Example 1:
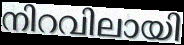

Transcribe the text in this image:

നിറവിലായി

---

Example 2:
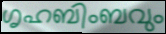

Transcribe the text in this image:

ഗൃഹബിംബവും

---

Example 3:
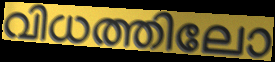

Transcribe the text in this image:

വിധത്തിലോ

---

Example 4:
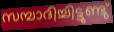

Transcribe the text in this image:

സമ്പാദിച്ചിട്ടുണ്ടു്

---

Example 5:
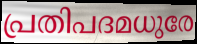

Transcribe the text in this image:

പ്രതിപദമധുരേ